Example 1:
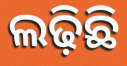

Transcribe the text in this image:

ଲଢ଼ିଛି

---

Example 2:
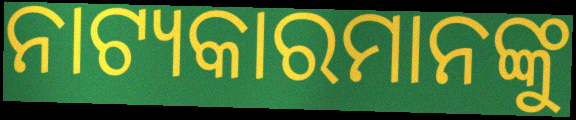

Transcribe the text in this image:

ନାଟ୍ଯକାରମାନଙ୍କୁ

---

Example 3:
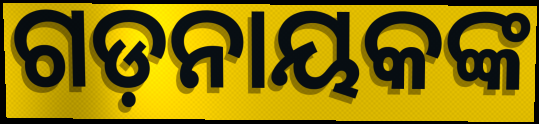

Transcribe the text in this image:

ଗଡ଼ନାୟକଙ୍କ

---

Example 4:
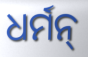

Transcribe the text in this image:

ଧର୍ମନ୍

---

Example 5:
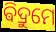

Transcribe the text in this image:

ଵିଦ୍ରୁମେ